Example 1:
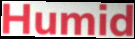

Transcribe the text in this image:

Humid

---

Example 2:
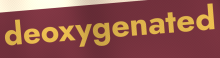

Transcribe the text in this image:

deoxygenated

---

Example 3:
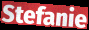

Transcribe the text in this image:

Stefanie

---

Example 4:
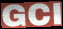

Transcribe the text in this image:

GCI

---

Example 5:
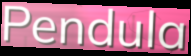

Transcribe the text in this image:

Pendula